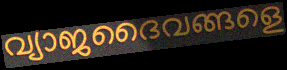
വ്യാജദൈവങ്ങളെ